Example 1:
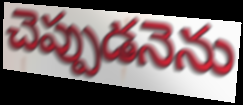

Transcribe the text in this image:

చెప్పుడనెను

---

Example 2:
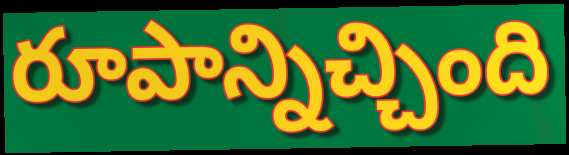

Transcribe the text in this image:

రూపాన్నిచ్చింది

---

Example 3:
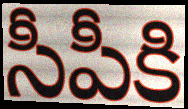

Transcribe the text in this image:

సీపీకి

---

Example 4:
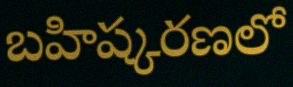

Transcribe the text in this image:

బహిష్కరణలో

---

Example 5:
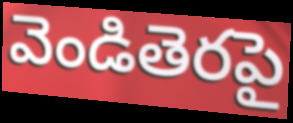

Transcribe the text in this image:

వెండితెరపై